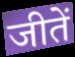
जीतें